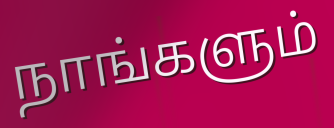
நாங்களும்